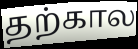
தற்கால